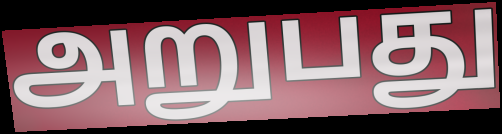
அறுபது